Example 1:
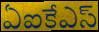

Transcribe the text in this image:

ఏఐకేఎస్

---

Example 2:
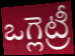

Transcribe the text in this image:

ఒగ్లెట్రీ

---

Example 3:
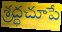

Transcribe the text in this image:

శ్రద్ధచూపే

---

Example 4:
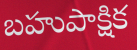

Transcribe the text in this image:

బహుపాక్షిక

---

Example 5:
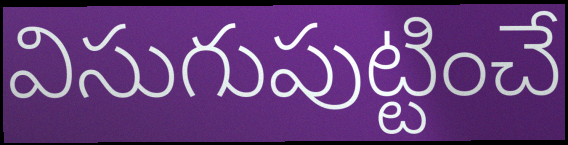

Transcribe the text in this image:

విసుగుపుట్టించే